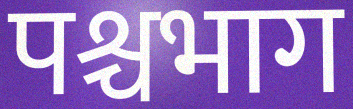
पश्चभाग